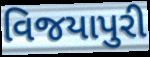
વિજયાપુરી